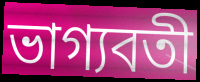
ভাগ্যবতী